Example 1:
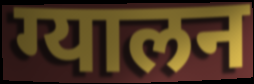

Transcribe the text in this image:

ग्यालन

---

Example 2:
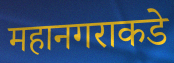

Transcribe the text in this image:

महानगराकडे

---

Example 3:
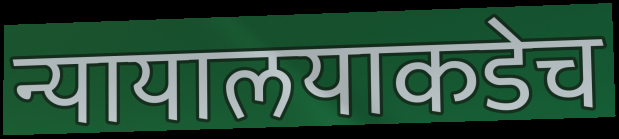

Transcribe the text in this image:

न्यायालयाकडेच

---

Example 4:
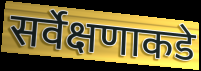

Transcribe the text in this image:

सर्वेक्षणाकडे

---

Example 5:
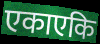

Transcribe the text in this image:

एकाएकि